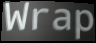
Wrap